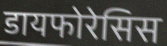
डायफोरेसिस